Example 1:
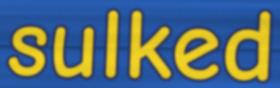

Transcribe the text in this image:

sulked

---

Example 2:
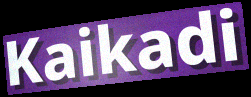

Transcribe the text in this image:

Kaikadi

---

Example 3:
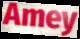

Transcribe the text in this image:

Amey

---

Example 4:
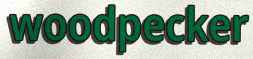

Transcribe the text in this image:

woodpecker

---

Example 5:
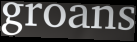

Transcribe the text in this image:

groans